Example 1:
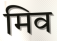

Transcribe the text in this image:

मिव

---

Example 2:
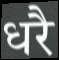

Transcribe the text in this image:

धरै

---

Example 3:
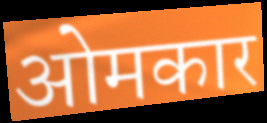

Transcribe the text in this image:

ओमकार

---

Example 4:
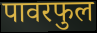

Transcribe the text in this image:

पावरफुल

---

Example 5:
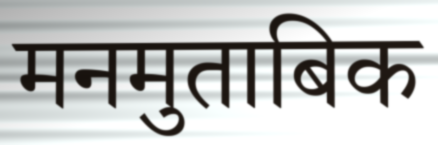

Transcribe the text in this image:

मनमुताबिक